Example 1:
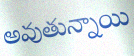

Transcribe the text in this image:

అవుతున్నాయి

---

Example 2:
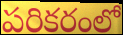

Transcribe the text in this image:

పరికరంలో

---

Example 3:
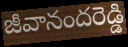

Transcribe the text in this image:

జీవానందరెడ్డి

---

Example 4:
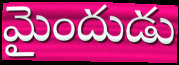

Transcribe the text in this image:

మైందుడు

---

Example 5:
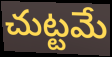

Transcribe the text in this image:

చుట్టమే